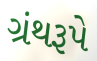
ગ્રંથરૂપે